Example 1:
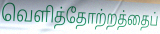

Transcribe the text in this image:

வெளித்தோற்றத்தைப்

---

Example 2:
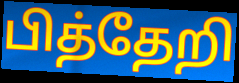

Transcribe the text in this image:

பித்தேறி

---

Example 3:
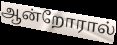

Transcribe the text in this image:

ஆன்றோரால்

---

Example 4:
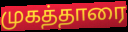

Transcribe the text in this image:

முகத்தாரை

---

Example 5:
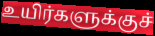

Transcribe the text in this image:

உயிர்களுக்குச்